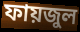
ফায়জুল